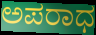
ಅಪರಾಧ